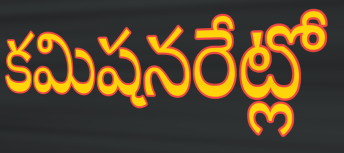
కమిషనరేట్లో